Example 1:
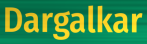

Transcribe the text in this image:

Dargalkar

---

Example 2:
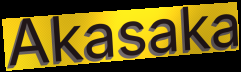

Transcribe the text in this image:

Akasaka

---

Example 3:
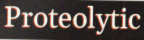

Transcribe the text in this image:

Proteolytic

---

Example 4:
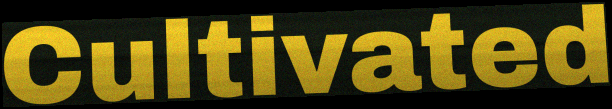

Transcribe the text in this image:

Cultivated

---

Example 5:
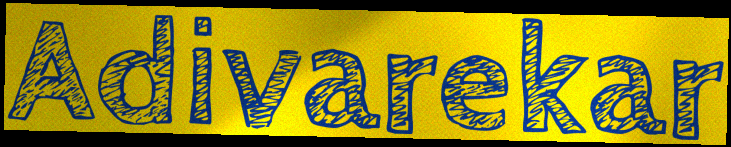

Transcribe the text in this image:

Adivarekar